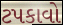
ટપકાવો